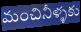
మంచినీళ్ళకు